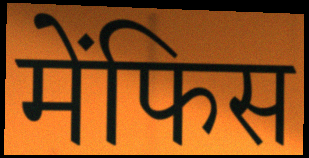
मेंफिस